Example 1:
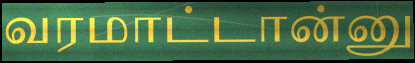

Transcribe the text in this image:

வரமாட்டான்னு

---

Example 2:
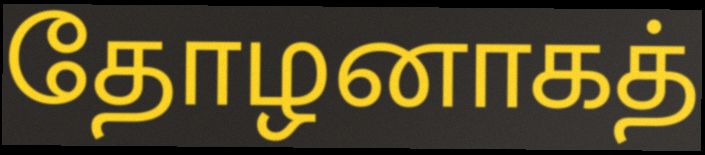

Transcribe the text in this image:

தோழனாகத்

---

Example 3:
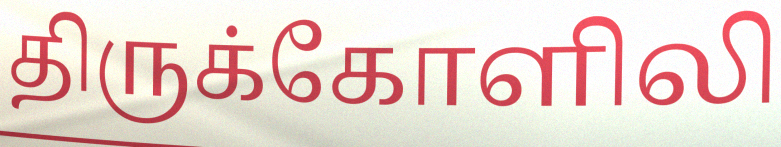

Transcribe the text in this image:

திருக்கோளிலி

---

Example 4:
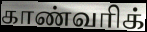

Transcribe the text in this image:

காண்வரிக்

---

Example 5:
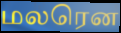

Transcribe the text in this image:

மலரென